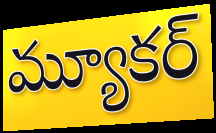
మ్యూకర్